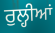
ਰੁਲ੍ਹੀਆਂ